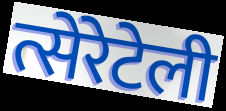
त्सेरेटेली